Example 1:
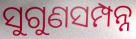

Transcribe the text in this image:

ସୁଗୁଣସମ୍ପନ୍ନ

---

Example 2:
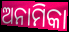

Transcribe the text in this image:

ଅନାମିକା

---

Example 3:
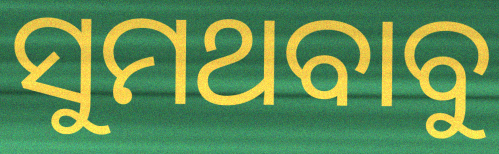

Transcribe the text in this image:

ସୁମଥବାବୁ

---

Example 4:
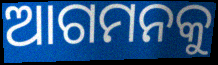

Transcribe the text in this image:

ଆଗମନକୁ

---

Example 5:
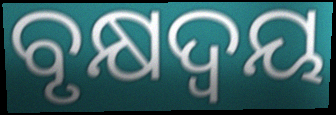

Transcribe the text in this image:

ବୃକ୍ଷଦ୍ୱୟ